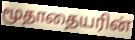
மூதாதையரின்